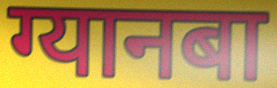
ग्यानबा